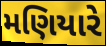
મણિયારે